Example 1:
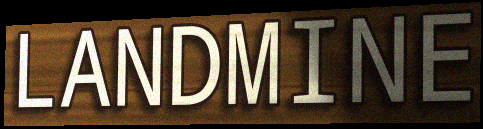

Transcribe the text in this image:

LANDMINE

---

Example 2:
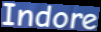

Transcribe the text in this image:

Indore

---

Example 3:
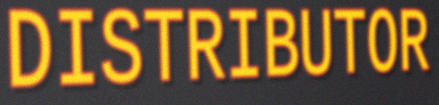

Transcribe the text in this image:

DISTRIBUTOR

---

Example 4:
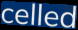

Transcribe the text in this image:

celled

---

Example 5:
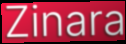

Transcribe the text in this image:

Zinara